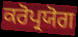
ਕਰੋਪ੍ਰਯੋਗ